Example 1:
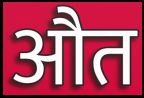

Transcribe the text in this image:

औत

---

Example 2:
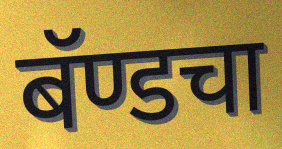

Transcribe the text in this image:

बॅण्डचा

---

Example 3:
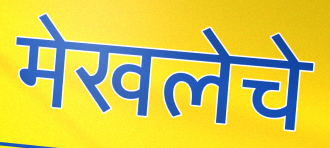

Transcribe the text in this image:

मेखलेचे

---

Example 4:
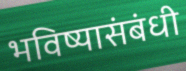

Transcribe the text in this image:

भविष्यासंबंधी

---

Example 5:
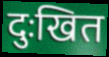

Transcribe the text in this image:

दुःखित